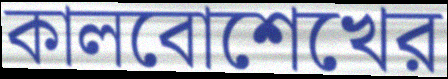
কালবোশেখের